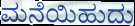
ಮನೆಯಿಹುದು